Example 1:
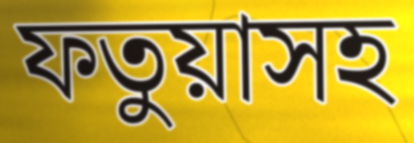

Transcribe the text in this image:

ফতুয়াসহ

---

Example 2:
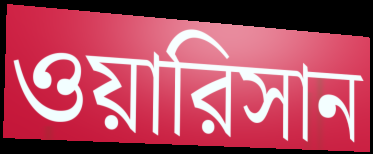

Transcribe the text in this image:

ওয়ারিসান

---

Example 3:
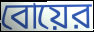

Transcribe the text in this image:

বোয়ের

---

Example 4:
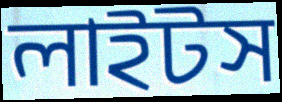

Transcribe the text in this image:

লাইটস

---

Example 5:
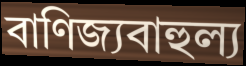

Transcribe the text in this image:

বাণিজ্যবাহুল্য